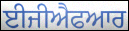
ਈਜੀਐਫਆਰ